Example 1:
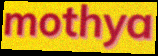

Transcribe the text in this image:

mothya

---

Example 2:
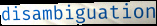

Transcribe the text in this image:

disambiguation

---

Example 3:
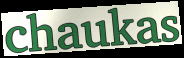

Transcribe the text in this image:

chaukas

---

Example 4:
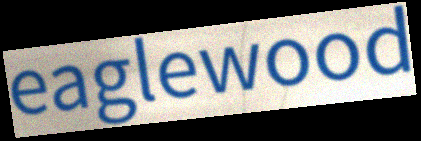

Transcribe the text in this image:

eaglewood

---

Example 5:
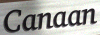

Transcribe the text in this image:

Canaan